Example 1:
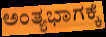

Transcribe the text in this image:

ಅಂತ್ಯಭಾಗಕ್ಕೆ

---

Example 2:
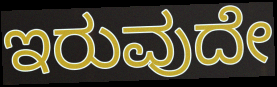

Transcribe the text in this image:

ಇರುವುದೇ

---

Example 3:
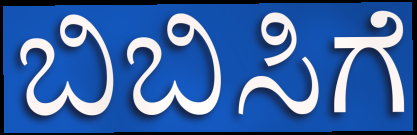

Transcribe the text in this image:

ಬಿಬಿಸಿಗೆ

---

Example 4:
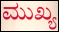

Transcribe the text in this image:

ಮುಖ್ಯ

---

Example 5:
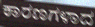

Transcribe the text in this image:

ಕಾರಣಗಳಾದ